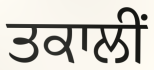
ਤਕਾਲੀਂ